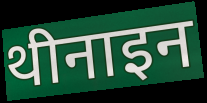
थीनाइन